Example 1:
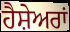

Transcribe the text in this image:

ਹੈਸ਼ੇਅਰਾਂ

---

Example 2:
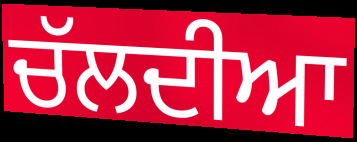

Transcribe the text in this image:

ਚੱਲਦੀਆ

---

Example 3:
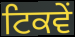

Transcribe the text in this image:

ਟਿਕਵੇਂ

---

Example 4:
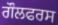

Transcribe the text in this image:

ਗੌਲਫਰਸ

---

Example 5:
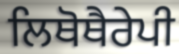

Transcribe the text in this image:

ਲਿਥੋਥੈਰੇਪੀ